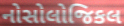
નોસોલોજિકલ